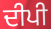
ਦੀਪੀ